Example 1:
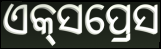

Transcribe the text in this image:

ଏକ୍‌ସପ୍ରେସ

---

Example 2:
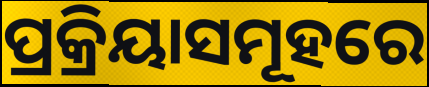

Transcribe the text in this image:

ପ୍ରକ୍ରିୟାସମୂହରେ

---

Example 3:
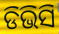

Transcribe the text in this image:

ଡିଭିସି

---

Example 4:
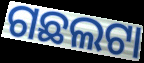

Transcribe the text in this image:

ଗଛଲଟା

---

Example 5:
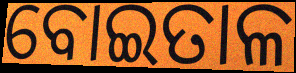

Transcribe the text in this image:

ବୋଇତାଳ